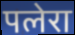
पलेरा